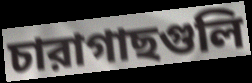
চারাগাছগুলি